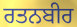
ਰਤਨਬੀਰ